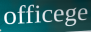
officege